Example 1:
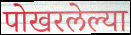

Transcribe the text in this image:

पोखरलेल्या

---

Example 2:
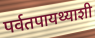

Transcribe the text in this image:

पर्वतपायथ्याशी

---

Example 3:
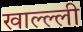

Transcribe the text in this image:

खाल्ल्ली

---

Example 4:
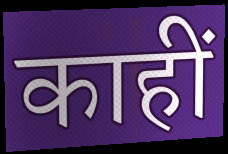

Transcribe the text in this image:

काहीं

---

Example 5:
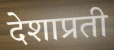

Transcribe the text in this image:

देशाप्रती